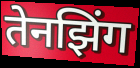
तेनझिंग